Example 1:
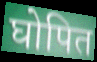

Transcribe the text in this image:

घोपित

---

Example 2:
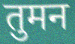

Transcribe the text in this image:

तुमन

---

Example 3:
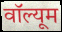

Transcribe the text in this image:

वॉल्यूम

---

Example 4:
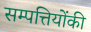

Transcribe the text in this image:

सम्पत्तियोंकी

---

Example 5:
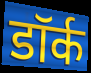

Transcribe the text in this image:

डॉर्क